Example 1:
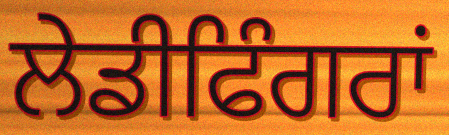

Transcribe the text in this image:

ਲੇਡੀਫਿੰਗਰਾਂ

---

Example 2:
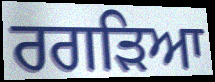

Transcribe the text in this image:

ਰਗੜਿਆ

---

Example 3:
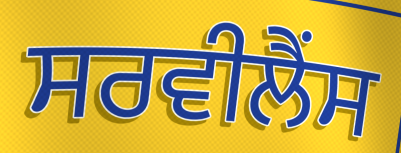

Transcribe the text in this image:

ਸਰਵੀਲੈਂਸ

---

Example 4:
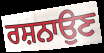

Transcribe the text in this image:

ਰਸ਼ਨਾਉਣ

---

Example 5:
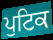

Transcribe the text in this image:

ਪੁਟਿਕ